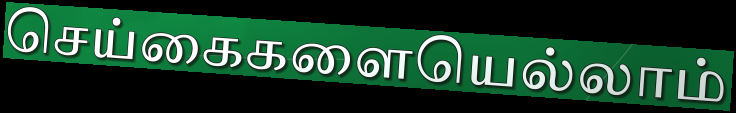
செய்கைகளையெல்லாம்